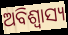
ଅବିଶ୍ୱାସ୍ୟ